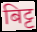
बिट्ट